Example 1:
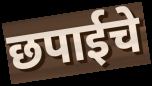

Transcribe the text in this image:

छपाईचे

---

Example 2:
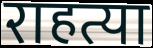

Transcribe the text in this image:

राहत्या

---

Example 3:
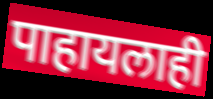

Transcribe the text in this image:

पाहायलाही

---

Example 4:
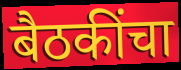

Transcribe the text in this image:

बैठकींचा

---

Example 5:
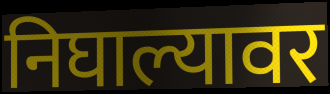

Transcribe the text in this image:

निघाल्यावर